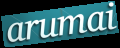
arumai